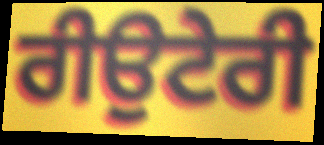
ਰੀਉਟੇਰੀ